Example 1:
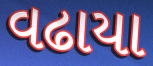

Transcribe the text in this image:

વઢાયા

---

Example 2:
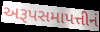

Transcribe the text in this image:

અરૂપસમાપત્તીનં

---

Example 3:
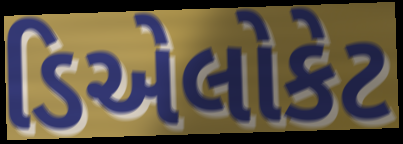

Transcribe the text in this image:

ડિએલોકેટ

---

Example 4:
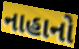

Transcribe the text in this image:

નાહાનો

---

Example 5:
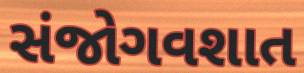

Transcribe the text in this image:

સંજોગવશાત